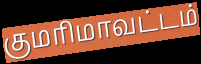
குமரிமாவட்டம்